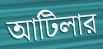
আটিলার